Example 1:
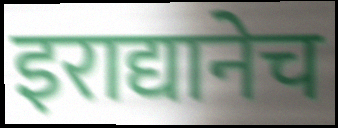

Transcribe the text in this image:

इराद्यानेच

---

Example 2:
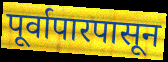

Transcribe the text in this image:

पूर्वापारपासून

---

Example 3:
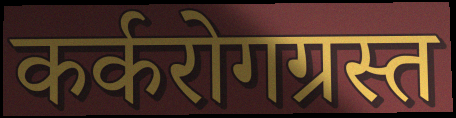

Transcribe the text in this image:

कर्करोगग्रस्त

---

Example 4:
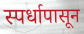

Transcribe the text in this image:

स्पर्धापासून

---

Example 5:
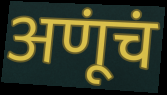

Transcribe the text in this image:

अणूंचं